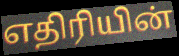
எதிரியின்